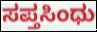
ಸಪ್ತಸಿಂಧು